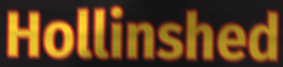
Hollinshed